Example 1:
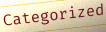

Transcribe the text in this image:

Categorized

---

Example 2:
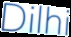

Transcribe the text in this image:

Dilhi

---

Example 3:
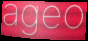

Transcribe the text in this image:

ageo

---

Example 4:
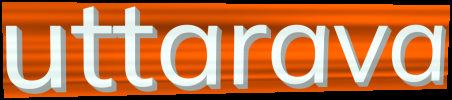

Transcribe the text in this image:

uttarava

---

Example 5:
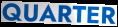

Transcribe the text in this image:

QUARTER